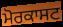
ਮੋਰਕਾਸਟ